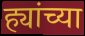
ह्‍यांच्या